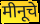
मीनूचे